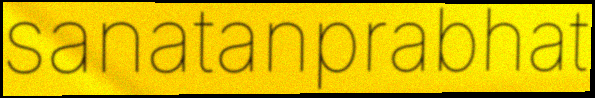
sanatanprabhat